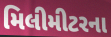
મિલીમીટરના